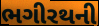
ભગીરથની